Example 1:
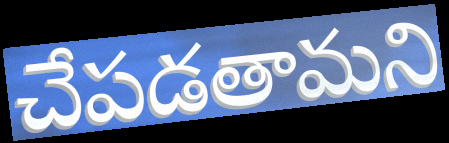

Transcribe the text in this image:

చేపడతామని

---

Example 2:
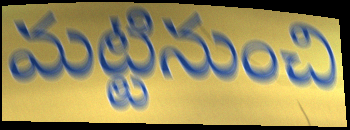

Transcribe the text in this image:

మట్టినుంచి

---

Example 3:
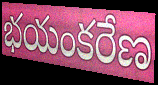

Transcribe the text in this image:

భయంకరేణ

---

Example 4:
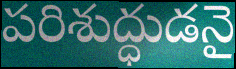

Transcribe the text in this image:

పరిశుద్ధుడనై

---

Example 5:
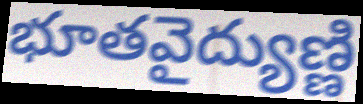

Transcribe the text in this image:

భూతవైద్యుణ్ణి